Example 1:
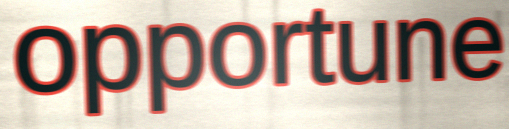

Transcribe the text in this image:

opportune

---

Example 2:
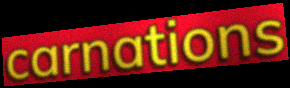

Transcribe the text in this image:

carnations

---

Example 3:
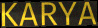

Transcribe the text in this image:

KARYA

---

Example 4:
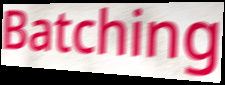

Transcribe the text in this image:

Batching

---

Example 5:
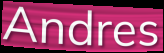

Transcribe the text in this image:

Andres